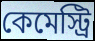
কেমেস্ট্রি